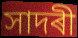
সাদৰী